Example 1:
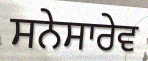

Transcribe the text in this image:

ਸਨੇਸਾਰੇਵ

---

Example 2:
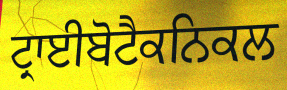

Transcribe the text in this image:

ਟ੍ਰਾਈਬੋਟੈਕਨਿਕਲ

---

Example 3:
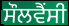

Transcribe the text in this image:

ਸੌਲਵੈਂਸੀ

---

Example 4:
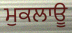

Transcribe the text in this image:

ਮੁਕਲਾਊ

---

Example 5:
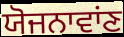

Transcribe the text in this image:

ਯੋਜਨਾਵਾਂਣ